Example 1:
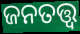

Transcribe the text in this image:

ଜନତତ୍ତ୍ୱ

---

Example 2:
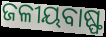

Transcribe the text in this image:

ଜଳୀୟବାଷ୍ଫ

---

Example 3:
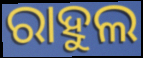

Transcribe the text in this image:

ରାହୁଲ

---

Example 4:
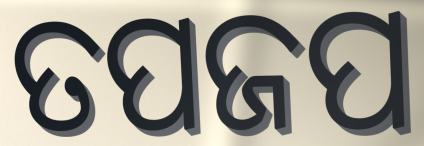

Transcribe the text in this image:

ତପଜପ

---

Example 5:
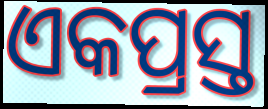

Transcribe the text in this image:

ଏକପ୍ରସ୍ତ